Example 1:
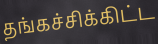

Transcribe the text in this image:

தங்கச்சிக்கிட்ட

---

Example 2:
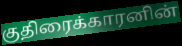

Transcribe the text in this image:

குதிரைக்காரனின்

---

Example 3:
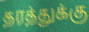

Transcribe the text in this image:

தரத்துக்கு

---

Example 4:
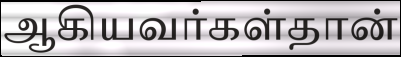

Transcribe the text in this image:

ஆகியவர்கள்தான்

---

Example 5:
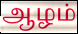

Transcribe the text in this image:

ஆழம்